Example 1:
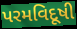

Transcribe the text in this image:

પરમવિદૂષી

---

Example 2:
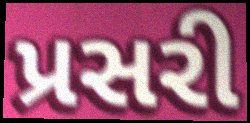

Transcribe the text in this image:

પ્રસરી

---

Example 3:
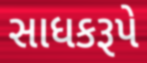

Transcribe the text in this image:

સાધકરૂપે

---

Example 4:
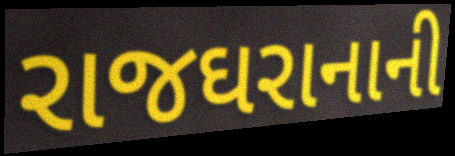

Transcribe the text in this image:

રાજઘરાનાની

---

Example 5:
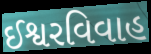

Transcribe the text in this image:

ઈશ્વરવિવાહ